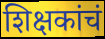
शिक्षकांचं